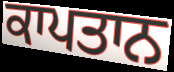
ਕਾਪਤਾਨ